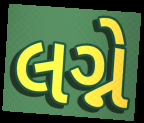
લગ્ને